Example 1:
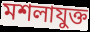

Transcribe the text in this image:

মশলাযুক্ত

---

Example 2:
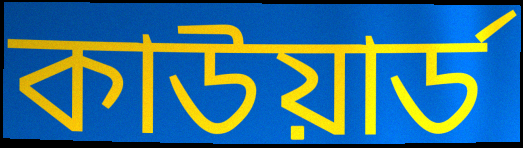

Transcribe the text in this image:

কাউয়ার্ড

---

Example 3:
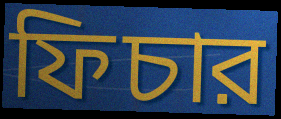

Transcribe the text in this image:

ফিচার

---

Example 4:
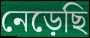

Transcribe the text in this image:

নেড়েছি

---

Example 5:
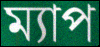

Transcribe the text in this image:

ম্যাপ